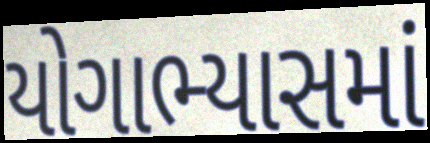
યોગાભ્યાસમાં